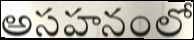
అసహనంలో